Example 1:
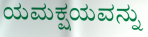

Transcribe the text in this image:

ಯಮಕ್ಷಯವನ್ನು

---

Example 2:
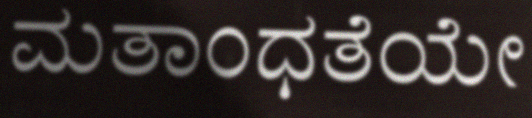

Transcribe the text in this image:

ಮತಾಂಧತೆಯೇ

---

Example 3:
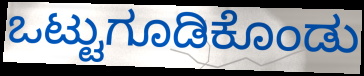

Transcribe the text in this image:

ಒಟ್ಟುಗೂಡಿಕೊಂಡು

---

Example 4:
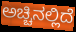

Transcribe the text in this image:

ಅಚ್ಚಿನಲ್ಲಿದೆ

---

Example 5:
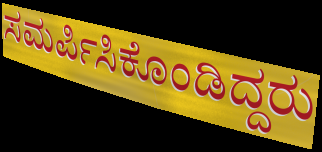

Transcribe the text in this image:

ಸಮರ್ಪಿಸಿಕೊಂಡಿದ್ದರು